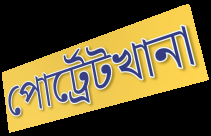
পোর্ট্রেটখানা